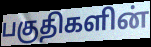
பகுதிகளின்